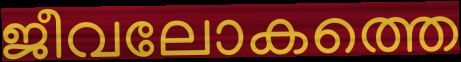
ജീവലോകത്തെ